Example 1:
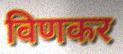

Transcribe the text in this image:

विणकर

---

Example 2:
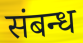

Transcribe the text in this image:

संबन्ध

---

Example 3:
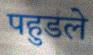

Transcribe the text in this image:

पहुडले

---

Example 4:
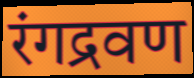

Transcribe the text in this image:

रंगद्रवण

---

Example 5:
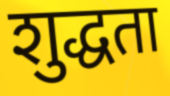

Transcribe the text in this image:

शुद्धता